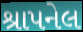
શ્રાપનેલ